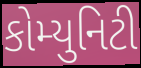
કોમ્યુનિટી